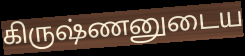
கிருஷ்ணனுடைய